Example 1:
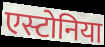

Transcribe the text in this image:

एस्‍टोनिया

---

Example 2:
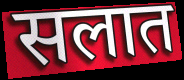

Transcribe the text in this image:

सलात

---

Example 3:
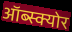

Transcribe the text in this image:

ऑब्स्क्योर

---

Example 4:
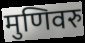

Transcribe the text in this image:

मुणिवरु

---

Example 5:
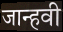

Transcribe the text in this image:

जान्हवी